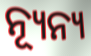
ନ୍ୟୂନ୍ୟ